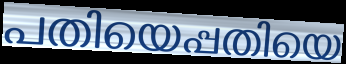
പതിയെപ്പതിയെ